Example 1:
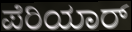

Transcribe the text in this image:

ಪೆರಿಯಾರ್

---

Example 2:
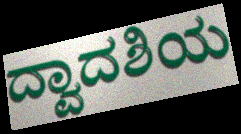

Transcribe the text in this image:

ದ್ವಾದಶಿಯ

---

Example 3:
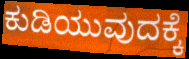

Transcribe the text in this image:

ಕುಡಿಯುವುದಕ್ಕೆ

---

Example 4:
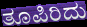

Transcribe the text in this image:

ತೂಪಿರಿದು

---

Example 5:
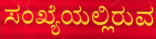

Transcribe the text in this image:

ಸಂಖ್ಯೆಯಲ್ಲಿರುವ